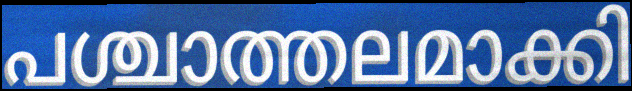
പശ്ചാത്തലമാക്കി